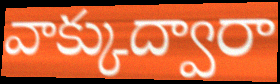
వాక్కుద్వారా